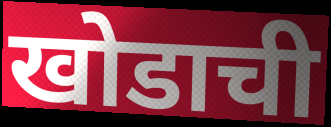
खोडाची